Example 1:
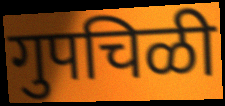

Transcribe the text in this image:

गुपचिळी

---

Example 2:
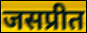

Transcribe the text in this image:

जसप्रीत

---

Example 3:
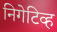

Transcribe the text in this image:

निगेटिव्ह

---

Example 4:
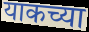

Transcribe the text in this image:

याकच्या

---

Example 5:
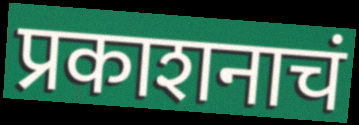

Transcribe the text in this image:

प्रकाशनाचं